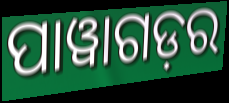
ପାୱାଗଡ଼ର